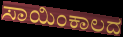
ಸಾಯಿಂಕಾಲದ